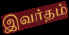
இவர்தம்